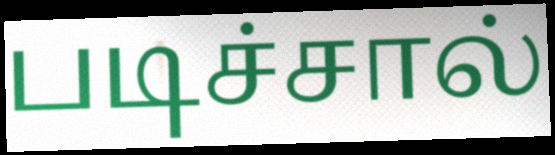
படிச்சால்